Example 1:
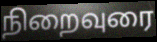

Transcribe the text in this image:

நிறைவுரை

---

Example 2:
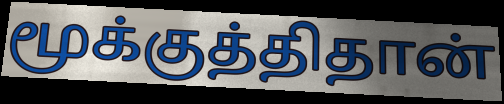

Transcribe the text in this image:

மூக்குத்திதான்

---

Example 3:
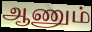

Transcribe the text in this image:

ஆணும்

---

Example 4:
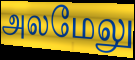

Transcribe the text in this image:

அலமேலு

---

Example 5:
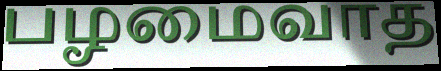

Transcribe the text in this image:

பழமைவாத